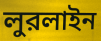
লুরলাইন